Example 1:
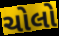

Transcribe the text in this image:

ચોલો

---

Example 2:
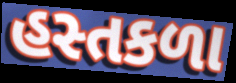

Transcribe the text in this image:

હસ્તકળા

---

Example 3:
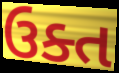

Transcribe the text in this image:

ઉક્ત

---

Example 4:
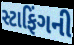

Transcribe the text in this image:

સ્ટાફિંગની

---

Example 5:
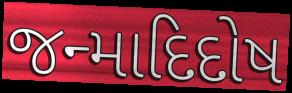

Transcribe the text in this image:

જન્માદિદોષ